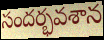
సందర్భవశాన